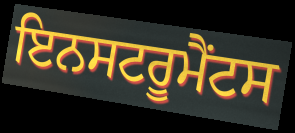
ਇਨਸਟਰੂਮੈਂਟਸ